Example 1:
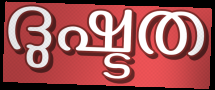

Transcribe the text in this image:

ദുഷ്ടത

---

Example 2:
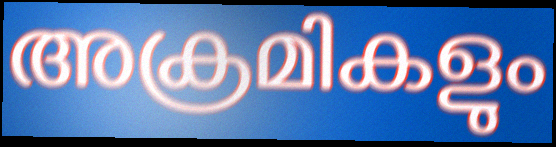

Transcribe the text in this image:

അക്രമികളും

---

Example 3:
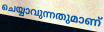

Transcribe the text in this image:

ചെയ്യാവുന്നതുമാണ്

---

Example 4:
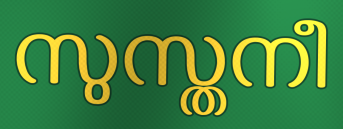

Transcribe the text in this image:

സുസ്തനീ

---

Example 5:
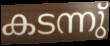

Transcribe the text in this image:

കടന്നു്